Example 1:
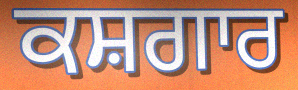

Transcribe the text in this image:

ਕਸ਼ਗਾਰ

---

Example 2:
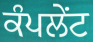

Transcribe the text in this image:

ਕੰਪਲੇਂਟ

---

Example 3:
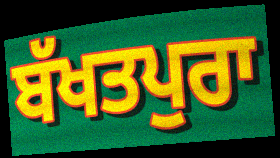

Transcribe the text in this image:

ਬੱਖਤਪੁਰਾ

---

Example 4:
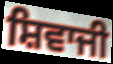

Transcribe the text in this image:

ਸ਼ਿਵਾਜੀ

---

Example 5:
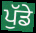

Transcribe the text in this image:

ਪੁੱਡੇ